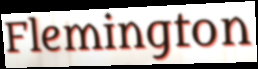
Flemington